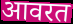
आवरत